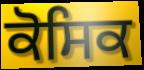
ਕੋਸਿਕ